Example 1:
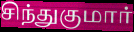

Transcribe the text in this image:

சிந்துகுமார்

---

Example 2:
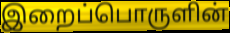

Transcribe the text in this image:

இறைப்பொருளின்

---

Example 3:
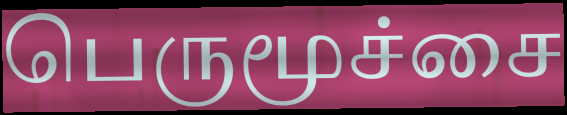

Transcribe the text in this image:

பெருமூச்சை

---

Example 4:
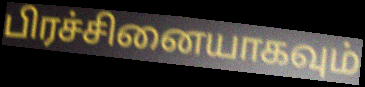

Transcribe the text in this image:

பிரச்சினையாகவும்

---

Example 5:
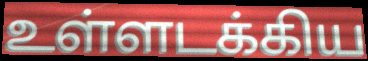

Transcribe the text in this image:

உள்ளடக்கிய